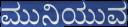
ಮುನಿಯುವ